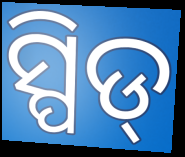
ସ୍ପିଡ୍